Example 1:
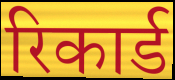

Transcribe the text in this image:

रिकार्ड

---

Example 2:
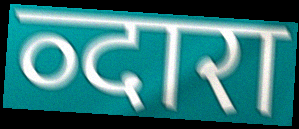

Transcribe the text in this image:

व्दारा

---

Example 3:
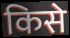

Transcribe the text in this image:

किसे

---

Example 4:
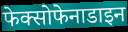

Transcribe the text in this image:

फेक्सोफेनाडाइन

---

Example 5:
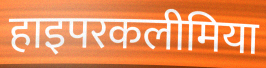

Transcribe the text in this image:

हाइपरकलीमिया